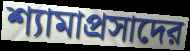
শ্যামাপ্রসাদের